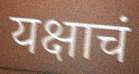
यक्षाचं